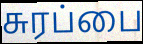
சுரப்பை